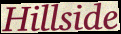
Hillside